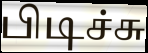
பிடிச்சு